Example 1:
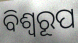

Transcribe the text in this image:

ବିଶ୍ୱରୂପ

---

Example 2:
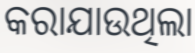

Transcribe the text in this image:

କରାଯାଉଥିଲା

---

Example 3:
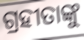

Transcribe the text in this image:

ଗ୍ରହୀତାଙ୍କୁ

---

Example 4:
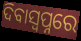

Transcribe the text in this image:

ଦିବାସ୍ବପ୍ନରେ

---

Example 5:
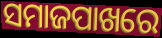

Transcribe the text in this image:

ସମାଜପାଖରେ